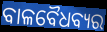
ବାଳବୈଧବ୍ୟର